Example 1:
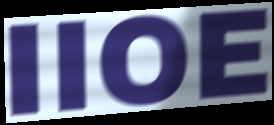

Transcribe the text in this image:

IIOE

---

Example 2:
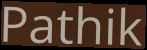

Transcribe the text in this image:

Pathik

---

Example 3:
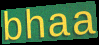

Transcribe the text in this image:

bhaa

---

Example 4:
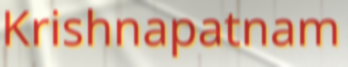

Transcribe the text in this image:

Krishnapatnam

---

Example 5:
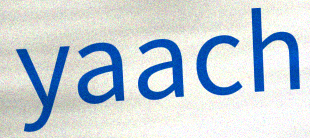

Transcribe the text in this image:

yaach